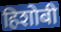
हिशोबी